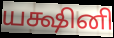
யக்ஷினி